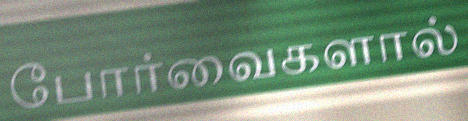
போர்வைகளால்